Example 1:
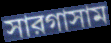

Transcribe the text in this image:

সারগাসাম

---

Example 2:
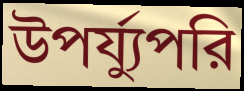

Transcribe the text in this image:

উপর্য্যুপরি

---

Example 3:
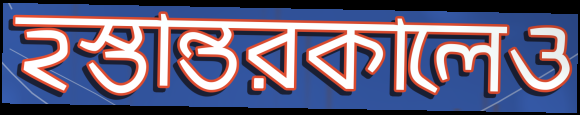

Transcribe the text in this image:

হস্তান্তরকালেও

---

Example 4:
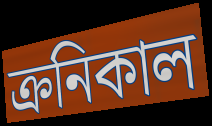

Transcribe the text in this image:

ক্রনিকাল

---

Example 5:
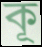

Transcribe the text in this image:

কূ